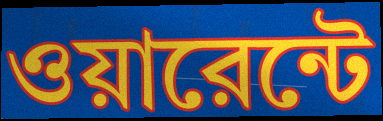
ওয়ারেন্টে